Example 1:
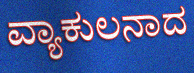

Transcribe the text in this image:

ವ್ಯಾಕುಲನಾದ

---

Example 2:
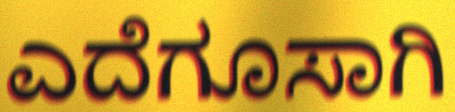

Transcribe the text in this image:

ಎದೆಗೂಸಾಗಿ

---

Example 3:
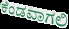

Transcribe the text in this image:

ಕೆಂಡವಾಗಲಿ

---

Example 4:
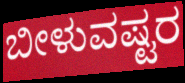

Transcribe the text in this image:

ಬೀಳುವಷ್ಟರ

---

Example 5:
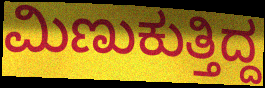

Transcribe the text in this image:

ಮಿಣುಕುತ್ತಿದ್ದ